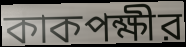
কাকপক্ষীর